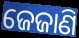
ଜେଜାଣି